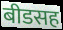
बीडसह